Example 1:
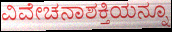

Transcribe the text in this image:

ವಿವೇಚನಾಶಕ್ತಿಯನ್ನೂ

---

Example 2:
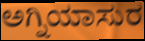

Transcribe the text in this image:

ಅಗ್ನಿಯಾಸುರ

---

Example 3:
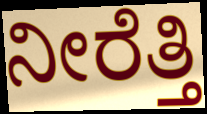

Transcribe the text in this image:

ನೀರೆತ್ತಿ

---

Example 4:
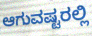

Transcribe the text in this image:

ಆಗುವಷ್ಟರಲ್ಲಿ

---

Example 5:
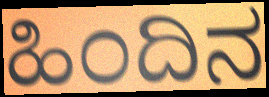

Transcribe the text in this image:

ಹಿಂದಿನ